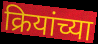
क्रियांच्या